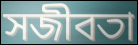
সজীবতা